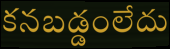
కనబడ్డంలేదు